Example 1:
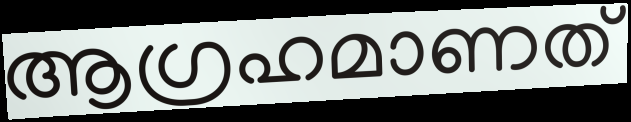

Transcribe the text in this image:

ആഗ്രഹമാണത്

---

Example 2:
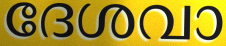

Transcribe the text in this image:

ദേശവാ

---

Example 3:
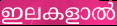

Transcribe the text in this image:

ഇലകളാൽ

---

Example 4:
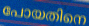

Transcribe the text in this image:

പോയതിനെ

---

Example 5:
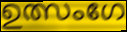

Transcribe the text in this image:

ഉത്സംഗേ